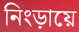
নিংড়ায়ে